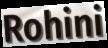
Rohini